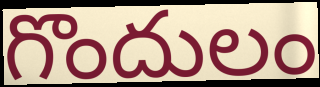
గొందులం